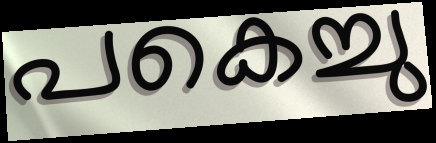
പകെച്ചു